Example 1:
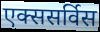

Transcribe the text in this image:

एक्ससर्विस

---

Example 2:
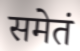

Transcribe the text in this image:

समेतं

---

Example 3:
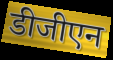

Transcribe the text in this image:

डीजीएन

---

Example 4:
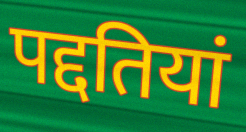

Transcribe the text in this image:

पद्दतियां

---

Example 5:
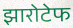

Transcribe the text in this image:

झारोटेफ